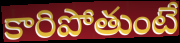
కారిపోతుంటే